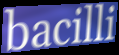
bacilli